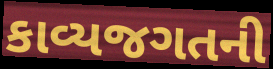
કાવ્યજગતની